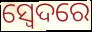
ସ୍ଵେଦରେ